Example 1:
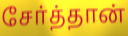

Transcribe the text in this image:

சேர்த்தான்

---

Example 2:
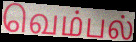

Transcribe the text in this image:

வெம்பல்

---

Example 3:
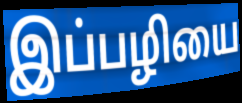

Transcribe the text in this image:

இப்பழியை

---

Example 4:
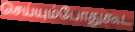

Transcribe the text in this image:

செய்யும்போதுகூட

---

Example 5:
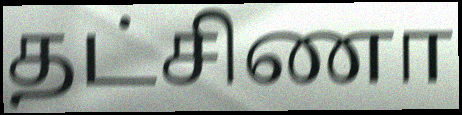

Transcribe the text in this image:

தட்சிணா